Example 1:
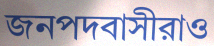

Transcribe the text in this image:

জনপদবাসীরাও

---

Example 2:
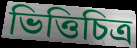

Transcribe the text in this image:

ভিত্তিচিত্র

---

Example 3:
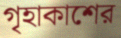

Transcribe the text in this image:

গৃহাকাশের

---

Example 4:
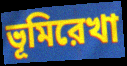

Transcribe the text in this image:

ভূমিরেখা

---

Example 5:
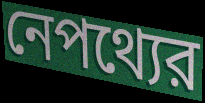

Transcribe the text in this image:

নেপথ্যের